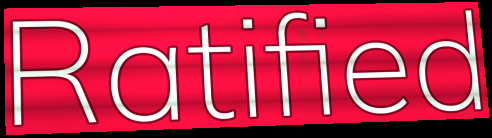
Ratified